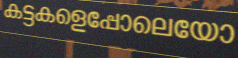
കട്ടകളെപ്പോലെയോ